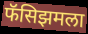
फॅसिझमला